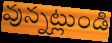
వున్నట్లుండి